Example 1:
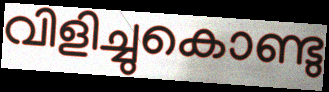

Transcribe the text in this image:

വിളിച്ചുകൊണ്ടു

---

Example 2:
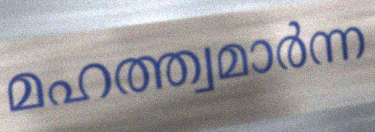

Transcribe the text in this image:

മഹത്ത്വമാർന്ന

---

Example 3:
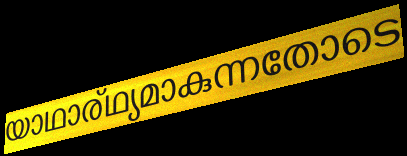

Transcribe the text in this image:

യാഥാര്ഥ്യമാകുന്നതോടെ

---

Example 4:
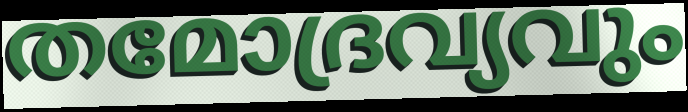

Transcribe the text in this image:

തമോദ്രവ്യവും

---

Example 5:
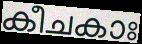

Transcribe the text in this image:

കീചകാഃ